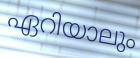
ഏറിയാലും